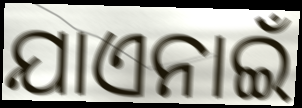
ଯାଏନାଇଁ